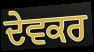
ਦੇਵਕਰ